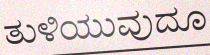
ತುಳಿಯುವುದೂ